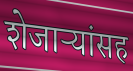
शेजाऱ्यांसह